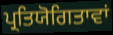
ਪ੍ਰਤਿਯੋਗਿਤਾਵਾਂ